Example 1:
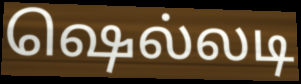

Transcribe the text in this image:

ஷெல்லடி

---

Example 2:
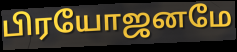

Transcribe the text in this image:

பிரயோஜனமே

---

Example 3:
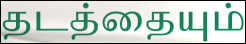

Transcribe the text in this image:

தடத்தையும்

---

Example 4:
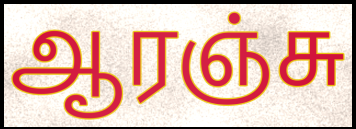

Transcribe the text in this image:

ஆரஞ்சு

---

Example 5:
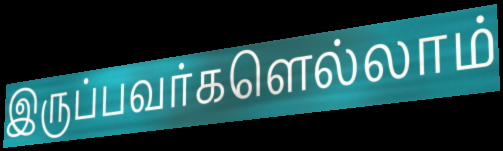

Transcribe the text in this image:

இருப்பவர்களெல்லாம்